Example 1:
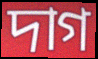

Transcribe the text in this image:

দাগ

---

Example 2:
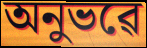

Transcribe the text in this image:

অনুভৱে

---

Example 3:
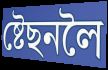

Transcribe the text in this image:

ষ্টেছনলৈ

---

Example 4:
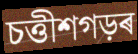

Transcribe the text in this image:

চত্তীশগড়ৰ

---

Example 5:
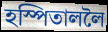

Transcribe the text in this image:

হস্পিতাললৈ